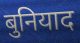
बुनियाद